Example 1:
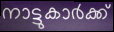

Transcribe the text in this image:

നാട്ടുകാർക്ക്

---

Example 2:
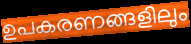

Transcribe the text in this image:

ഉപകരണങ്ങളിലും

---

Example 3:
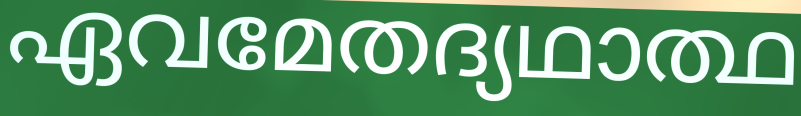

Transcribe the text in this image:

ഏവമേതദ്യഥാത്ഥ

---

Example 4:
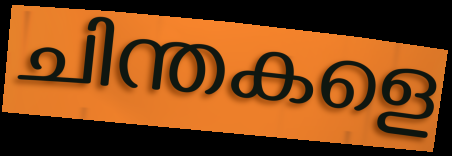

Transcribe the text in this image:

ചിന്തകളെ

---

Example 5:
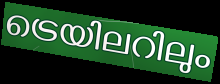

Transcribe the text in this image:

ട്രെയിലറിലും